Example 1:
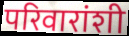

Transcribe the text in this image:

परिवारांशी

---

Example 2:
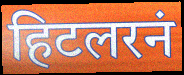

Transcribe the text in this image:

हिटलरनं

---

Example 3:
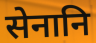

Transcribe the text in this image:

सेनानि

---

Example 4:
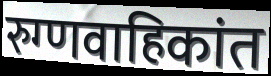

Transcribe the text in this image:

रुग्णवाहिकांत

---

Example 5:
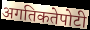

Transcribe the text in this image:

अगतिकतेपोटी